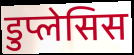
डुप्लेसिस